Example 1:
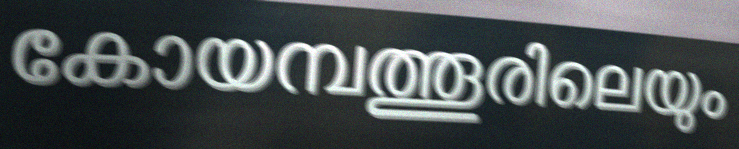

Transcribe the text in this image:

കോയമ്പത്തൂരിലെയും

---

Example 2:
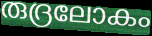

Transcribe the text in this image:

രുദ്രലോകം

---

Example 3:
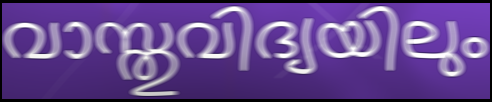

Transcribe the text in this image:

വാസ്തുവിദ്യയിലും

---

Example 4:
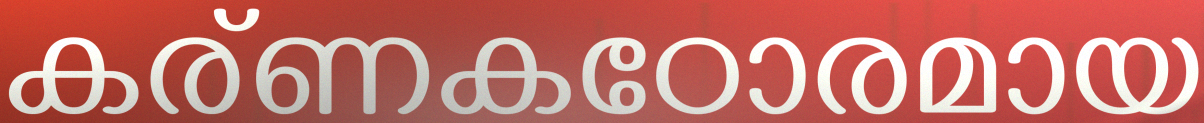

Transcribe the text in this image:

കര്ണകഠോരമായ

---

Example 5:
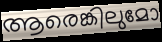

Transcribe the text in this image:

ആരെങ്കിലുമോ